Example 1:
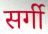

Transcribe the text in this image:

सर्गी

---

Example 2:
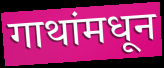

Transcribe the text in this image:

गाथांमधून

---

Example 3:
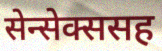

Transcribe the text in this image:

सेन्सेक्ससह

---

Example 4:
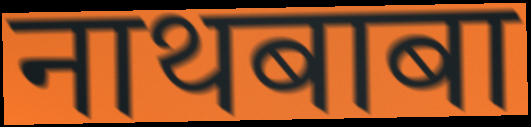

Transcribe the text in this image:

नाथबाबा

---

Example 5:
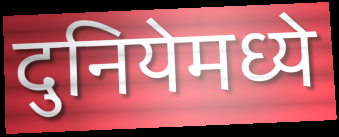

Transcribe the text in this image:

दुनियेमध्ये